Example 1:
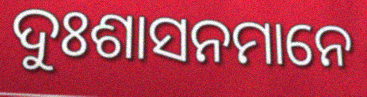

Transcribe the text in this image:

ଦୁଃଶାସନମାନେ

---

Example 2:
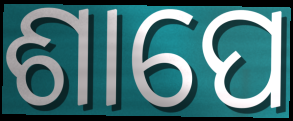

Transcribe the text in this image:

ଶାପେ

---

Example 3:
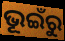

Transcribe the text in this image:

ଭୂଇଁରୁ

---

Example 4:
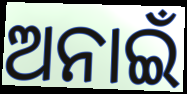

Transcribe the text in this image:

ଅନାଇଁ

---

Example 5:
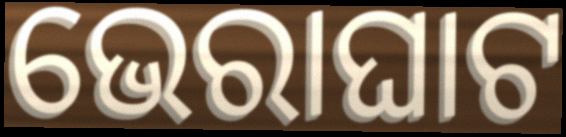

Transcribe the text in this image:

ଭେରାଘାଟ